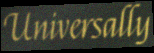
Universally